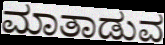
ಮಾತಾಡುವ